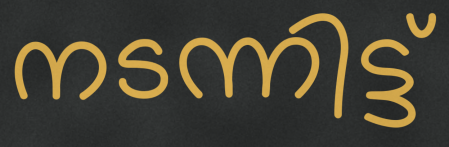
നടന്നിട്ട്